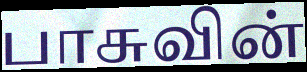
பாசுவின்